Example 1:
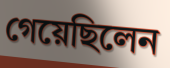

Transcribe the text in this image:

গেয়েছিলেন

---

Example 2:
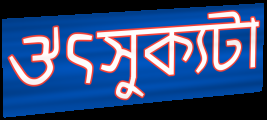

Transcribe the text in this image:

ঔৎসুক্যটা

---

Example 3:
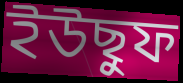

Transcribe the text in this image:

ইউছুফ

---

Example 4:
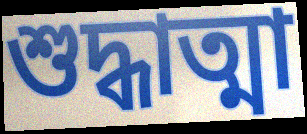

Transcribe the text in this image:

শুদ্ধাত্মা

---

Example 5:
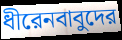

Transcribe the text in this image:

ধীরেনবাবুদের